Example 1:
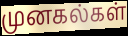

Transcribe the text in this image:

முனகல்கள்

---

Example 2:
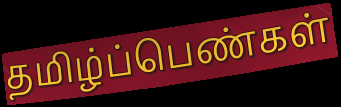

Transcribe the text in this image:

தமிழ்ப்பெண்கள்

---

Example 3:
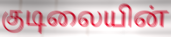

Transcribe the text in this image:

குடிலையின்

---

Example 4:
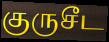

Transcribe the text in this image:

குருசீட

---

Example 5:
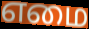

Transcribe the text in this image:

எமை